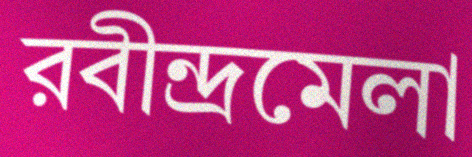
রবীন্দ্রমেলা